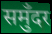
समुँदर